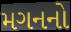
મગનનો